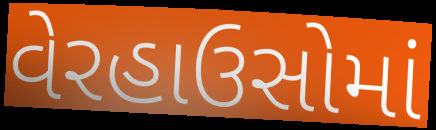
વેરહાઉસોમાં